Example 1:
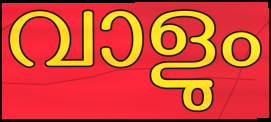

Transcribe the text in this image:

വാളും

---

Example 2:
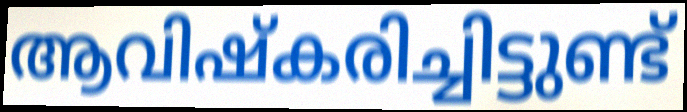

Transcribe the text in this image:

ആവിഷ്കരിച്ചിട്ടുണ്ട്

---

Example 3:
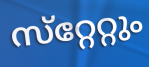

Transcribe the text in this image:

സ്‌റ്റേറ്റും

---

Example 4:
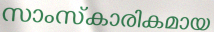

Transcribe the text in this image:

സാംസ്‌കാരികമായ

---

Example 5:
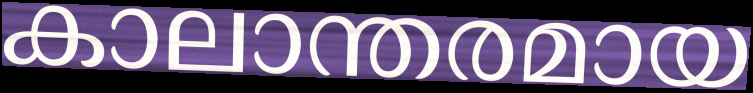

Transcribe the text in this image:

കാലാന്തരമായ